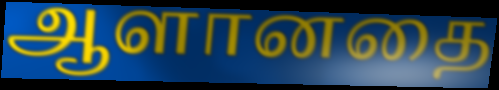
ஆளானதை